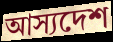
আস্যদেশ